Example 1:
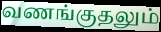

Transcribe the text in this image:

வணங்குதலும்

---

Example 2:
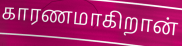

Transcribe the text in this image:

காரணமாகிறான்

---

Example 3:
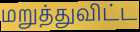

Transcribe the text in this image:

மறுத்துவிட்ட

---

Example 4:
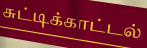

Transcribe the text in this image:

சுட்டிக்காட்டல்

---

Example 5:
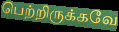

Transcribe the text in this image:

பெற்றிருக்கவே